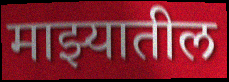
माझ्यातील